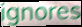
ignores